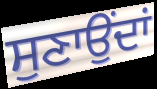
ਸੁਣਾਉਂਦਾਂ